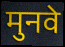
मुनवे